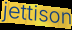
jettison